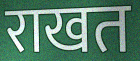
राखत